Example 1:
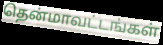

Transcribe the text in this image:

தென்மாவட்டங்கள்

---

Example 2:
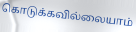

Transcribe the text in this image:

கொடுக்கவில்லையாம்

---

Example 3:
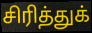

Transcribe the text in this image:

சிரித்துக்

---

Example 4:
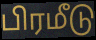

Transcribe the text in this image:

பிரமீடு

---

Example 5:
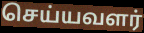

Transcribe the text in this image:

செய்யவளர்